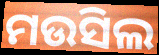
ମଉସିଲ